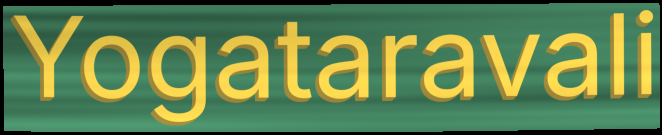
Yogataravali